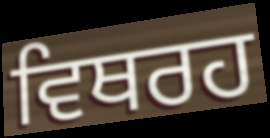
ਵਿਥਰਹ